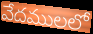
వేదములలో